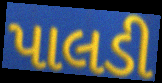
પાલડી